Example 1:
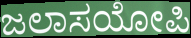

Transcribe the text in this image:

ಜಲಾಸಯೋಪಿ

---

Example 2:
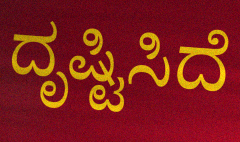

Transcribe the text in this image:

ದೃಷ್ಟಿಸಿದೆ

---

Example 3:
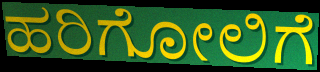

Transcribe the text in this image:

ಹರಿಗೋಲಿಗೆ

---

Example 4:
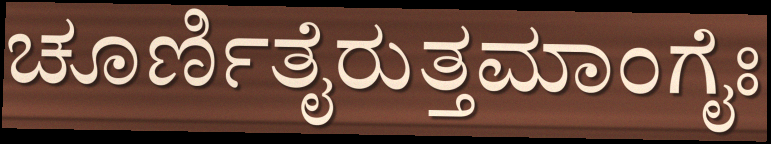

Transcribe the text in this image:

ಚೂರ್ಣಿತೈರುತ್ತಮಾಂಗೈಃ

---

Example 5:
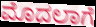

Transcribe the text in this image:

ಮೊದಲಾಗೆ